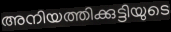
അനിയത്തിക്കുട്ടിയുടെ